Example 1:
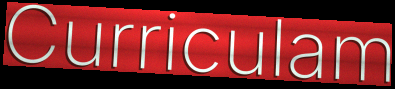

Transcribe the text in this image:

Curriculam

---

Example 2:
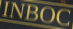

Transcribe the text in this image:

INBOC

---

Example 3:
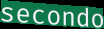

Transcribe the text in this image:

secondo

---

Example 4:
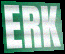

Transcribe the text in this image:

ERK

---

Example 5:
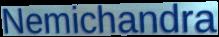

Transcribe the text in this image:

Nemichandra